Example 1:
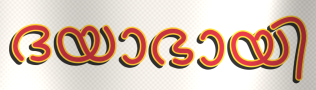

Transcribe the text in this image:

ദയാഭായി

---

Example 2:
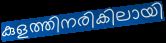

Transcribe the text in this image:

കുളത്തിനരികിലായി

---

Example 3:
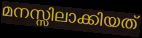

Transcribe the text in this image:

മനസ്സിലാക്കിയത്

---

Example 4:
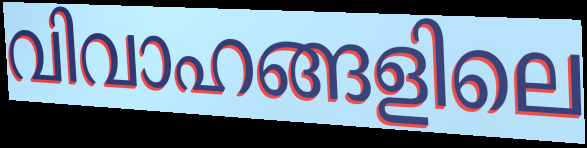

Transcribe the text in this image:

വിവാഹങ്ങളിലെ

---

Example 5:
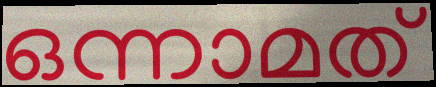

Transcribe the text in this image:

ഒന്നാമത്